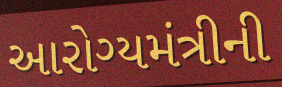
આરોગ્યમંત્રીની